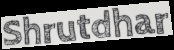
Shrutdhar